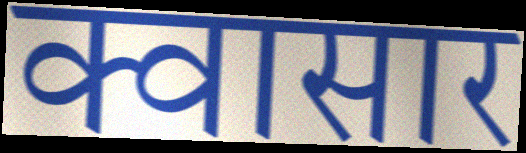
क्वासार